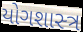
યોગશાસ્‍ત્ર